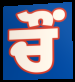
ਚੌਂ